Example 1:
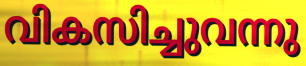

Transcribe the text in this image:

വികസിച്ചുവന്നു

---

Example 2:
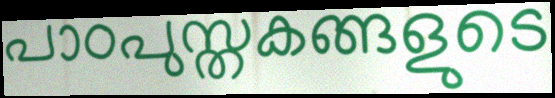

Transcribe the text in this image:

പാഠപുസ്തകങ്ങളുടെ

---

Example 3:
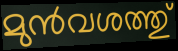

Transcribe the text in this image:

മുൻവശത്തു്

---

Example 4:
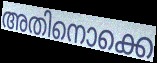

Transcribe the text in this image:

അതിനൊക്കെ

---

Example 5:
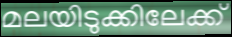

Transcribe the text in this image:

മലയിടുക്കിലേക്ക്